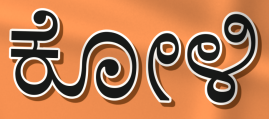
ಕೋಳಿ